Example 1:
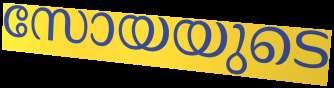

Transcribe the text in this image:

സോയയുടെ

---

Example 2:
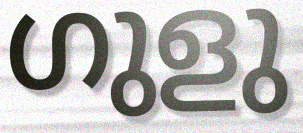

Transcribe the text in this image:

ഗുളു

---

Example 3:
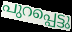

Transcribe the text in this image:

പുറപ്പെട്ടു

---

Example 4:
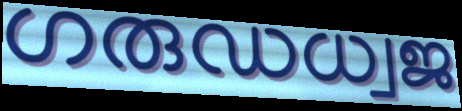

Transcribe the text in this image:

ഗരുഡധ്വജ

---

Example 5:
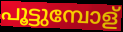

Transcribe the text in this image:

പൂട്ടുമ്പോള്